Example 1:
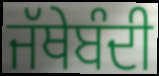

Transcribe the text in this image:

ਜੱਥੇਬੰਦੀ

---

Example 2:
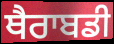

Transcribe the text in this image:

ਥੈਰਾਬਡੀ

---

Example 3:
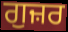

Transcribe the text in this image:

ਗੁਜ਼ਰ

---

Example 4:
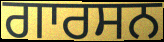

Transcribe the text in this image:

ਗਾਰਸਨ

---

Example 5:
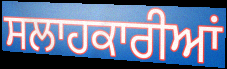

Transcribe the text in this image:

ਸਲਾਹਕਾਰੀਆਂ